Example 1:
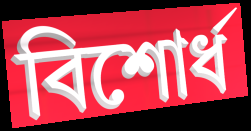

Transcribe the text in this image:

বিশোর্ধ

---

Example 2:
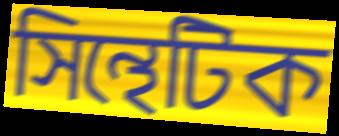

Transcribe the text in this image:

সিন্থেটিক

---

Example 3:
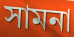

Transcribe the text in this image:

সামনা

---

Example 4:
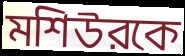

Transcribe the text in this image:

মশিউরকে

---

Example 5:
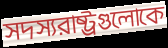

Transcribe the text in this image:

সদস্যরাষ্ট্রগুলোকে